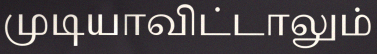
முடியாவிட்டாலும்